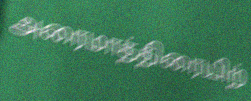
அரைமாத்திரையிற்